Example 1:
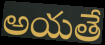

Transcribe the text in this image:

అయతే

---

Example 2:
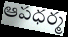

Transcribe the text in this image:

ఆపధర్మ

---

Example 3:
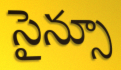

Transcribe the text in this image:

సైన్సూ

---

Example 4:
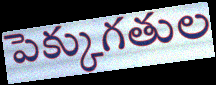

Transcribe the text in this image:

పెక్కుగతుల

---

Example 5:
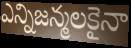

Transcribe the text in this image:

ఎన్నిజన్మలకైనా